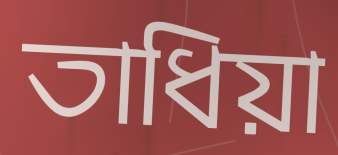
তাধিয়া